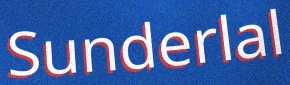
Sunderlal